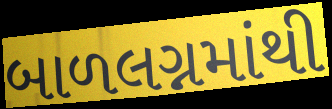
બાળલગ્નમાંથી